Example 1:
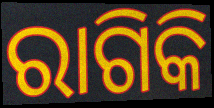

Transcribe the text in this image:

ରାଗିକି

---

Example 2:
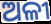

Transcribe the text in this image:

ଅଳୀ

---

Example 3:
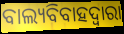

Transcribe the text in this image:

ବାଲ୍ୟବିବାହଦ୍ୱାରା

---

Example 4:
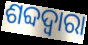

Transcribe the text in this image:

ଶବ୍ଦଦ୍ୱାରା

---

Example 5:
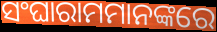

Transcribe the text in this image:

ସଂଘାରାମମାନଙ୍କରେ